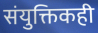
संयुक्तिकही